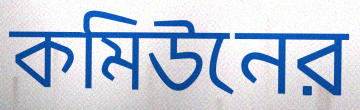
কমিউনের